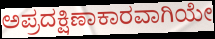
ಅಪ್ರದಕ್ಷಿಣಾಕಾರವಾಗಿಯೇ